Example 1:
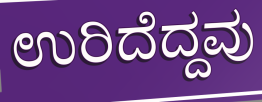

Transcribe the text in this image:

ಉರಿದೆದ್ದವು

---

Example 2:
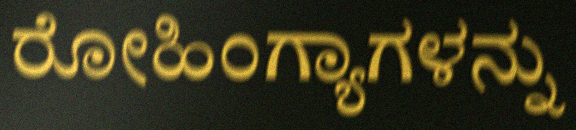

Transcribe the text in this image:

ರೋಹಿಂಗ್ಯಾಗಳನ್ನು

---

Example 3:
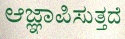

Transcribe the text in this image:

ಆಜ್ಞಾಪಿಸುತ್ತದೆ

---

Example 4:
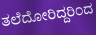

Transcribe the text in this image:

ತಲೆದೋರಿದ್ದರಿಂದ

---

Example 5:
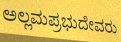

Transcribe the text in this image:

ಅಲ್ಲಮಪ್ರಭುದೇವರು